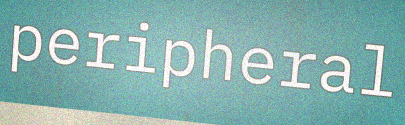
peripheral